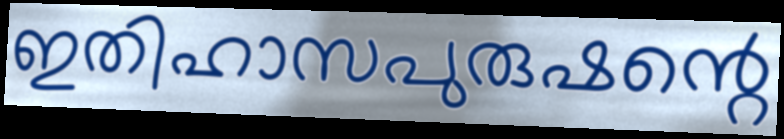
ഇതിഹാസപുരുഷന്റെ